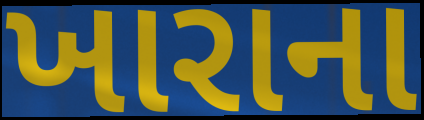
ખારાના